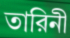
তারিনী